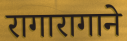
रागारागाने